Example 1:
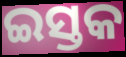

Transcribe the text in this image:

ଇସ୍ତକ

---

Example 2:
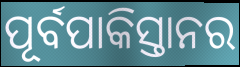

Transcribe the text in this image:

ପୂର୍ବପାକିସ୍ତାନର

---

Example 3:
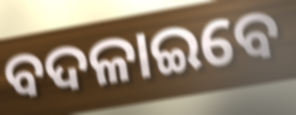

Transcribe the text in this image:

ବଦଳାଇବେ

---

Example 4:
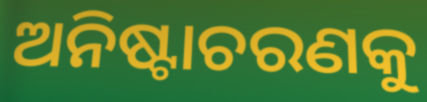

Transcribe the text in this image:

ଅନିଷ୍ଟାଚରଣକୁ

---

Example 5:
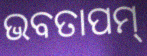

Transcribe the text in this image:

ଭବତାପମ୍